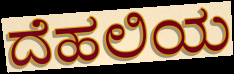
ದೆಹಲಿಯ